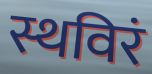
स्थविरं